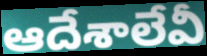
ఆదేశాలేవీ